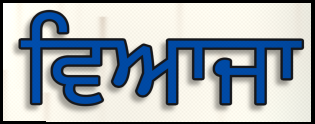
ਵਿਆਜਾ